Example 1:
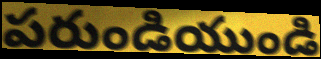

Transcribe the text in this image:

పరుండియుండి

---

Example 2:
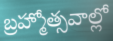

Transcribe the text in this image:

బ్రహ్మోత్సవాల్లో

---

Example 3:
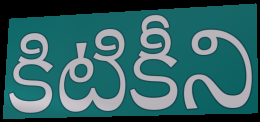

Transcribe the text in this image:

కిటికీని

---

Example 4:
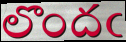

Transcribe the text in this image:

లొందఁ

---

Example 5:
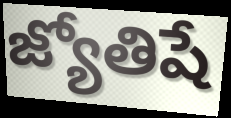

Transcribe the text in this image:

జ్యోతిషే